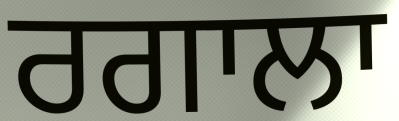
ਰਗਾਲਾ